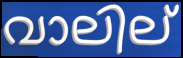
വാലില്